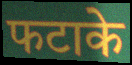
फटाके